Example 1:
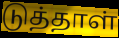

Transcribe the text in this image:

டுத்தாள்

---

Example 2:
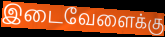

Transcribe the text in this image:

இடைவேளைக்கு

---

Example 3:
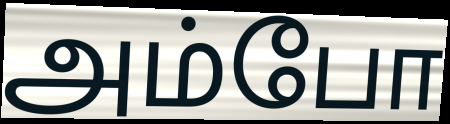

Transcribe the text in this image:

அம்போ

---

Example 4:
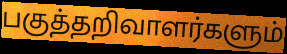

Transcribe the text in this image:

பகுத்தறிவாளர்களும்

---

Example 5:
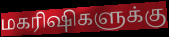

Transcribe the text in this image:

மகரிஷிகளுக்கு